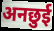
अनछुई